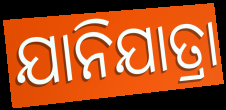
ଯାନିଯାତ୍ରା